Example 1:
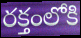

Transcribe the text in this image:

రక్తంలోకి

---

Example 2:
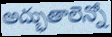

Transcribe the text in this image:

అద్భుతాలెన్నో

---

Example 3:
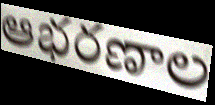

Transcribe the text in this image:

ఆభరణాల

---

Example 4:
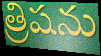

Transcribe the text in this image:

త్రిషను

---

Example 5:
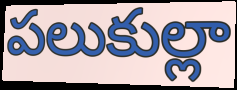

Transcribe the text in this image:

పలుకుల్లా